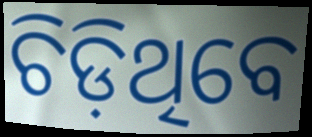
ଚିଡ଼ିଥିବେ